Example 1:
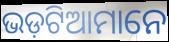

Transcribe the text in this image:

ଭଡ଼ଟିଆମାନେ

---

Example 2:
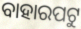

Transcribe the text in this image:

ବାହାରପଟୁ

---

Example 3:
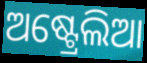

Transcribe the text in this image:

ଅଷ୍ଟ୍ରେଲିଆ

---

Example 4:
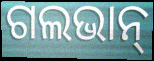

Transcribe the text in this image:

ଗଲଭାନ୍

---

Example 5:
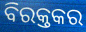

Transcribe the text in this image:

ବିରକ୍ତକର